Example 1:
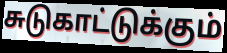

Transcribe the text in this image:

சுடுகாட்டுக்கும்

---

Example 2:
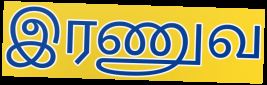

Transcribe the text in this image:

இரணுவ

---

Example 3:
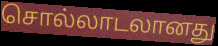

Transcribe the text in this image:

சொல்லாடலானது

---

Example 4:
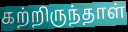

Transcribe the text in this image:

கற்றிருந்தாள்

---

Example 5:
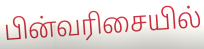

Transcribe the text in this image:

பின்வரிசையில்